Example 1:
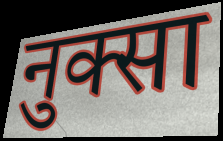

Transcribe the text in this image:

नुक्सा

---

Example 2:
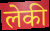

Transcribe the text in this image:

लेकी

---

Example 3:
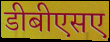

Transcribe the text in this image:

डीबीएसए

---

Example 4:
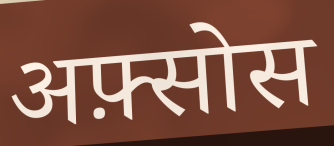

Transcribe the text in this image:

अफ़्सोस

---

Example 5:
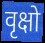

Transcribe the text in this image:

वृक्षो